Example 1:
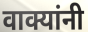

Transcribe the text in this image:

वाक्यांनी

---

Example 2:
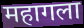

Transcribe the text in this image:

महागला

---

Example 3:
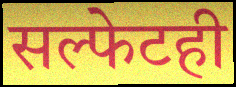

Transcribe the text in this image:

सल्फेटही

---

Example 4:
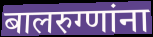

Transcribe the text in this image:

बालरुग्णांना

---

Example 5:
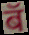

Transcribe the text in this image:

बॅ